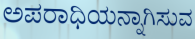
ಅಪರಾಧಿಯನ್ನಾಗಿಸುವ